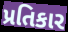
પ્રતિકાર